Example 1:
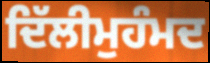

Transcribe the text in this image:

ਦਿੱਲੀਮੁਹੰਮਦ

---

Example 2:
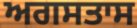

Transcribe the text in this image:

ਅਗਸਤਾਸ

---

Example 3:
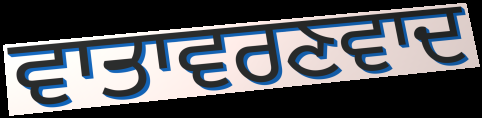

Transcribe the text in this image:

ਵਾਤਾਵਰਣਵਾਦ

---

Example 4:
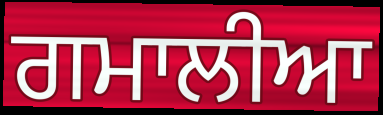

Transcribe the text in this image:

ਗਮਾਲੀਆ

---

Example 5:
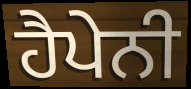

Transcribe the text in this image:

ਹੈਪੇਨੀ